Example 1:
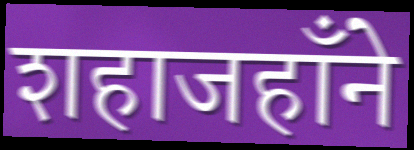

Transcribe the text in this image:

शहाजहाँने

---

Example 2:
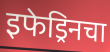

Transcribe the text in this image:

इफेड्रिनचा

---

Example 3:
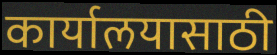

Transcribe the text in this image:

कार्यालयासाठी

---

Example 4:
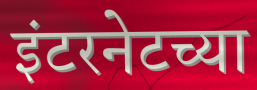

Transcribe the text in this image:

इंटरनेटच्या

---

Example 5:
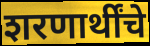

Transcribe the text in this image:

शरणार्थींचे